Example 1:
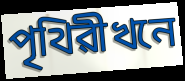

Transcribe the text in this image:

পৃথিৱীখনে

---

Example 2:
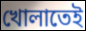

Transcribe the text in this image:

খোলাতেই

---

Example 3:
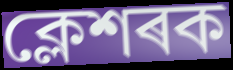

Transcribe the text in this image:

ক্লেশৰক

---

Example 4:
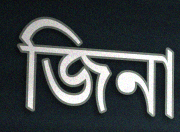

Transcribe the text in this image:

জিনা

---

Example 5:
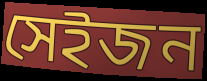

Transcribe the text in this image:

সেইজন